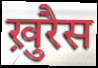
ख़ुरैस